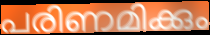
പരിണമിക്കും